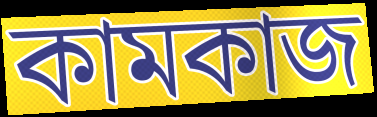
কামকাজ